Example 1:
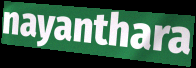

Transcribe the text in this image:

nayanthara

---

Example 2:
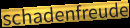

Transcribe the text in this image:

schadenfreude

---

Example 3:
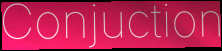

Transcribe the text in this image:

Conjuction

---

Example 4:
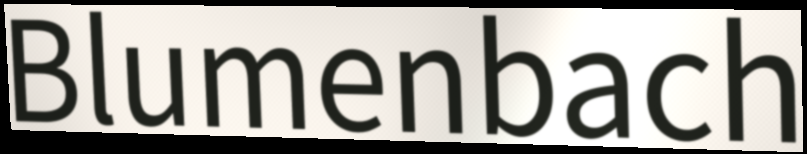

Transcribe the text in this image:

Blumenbach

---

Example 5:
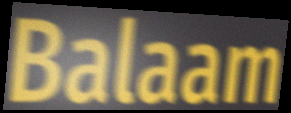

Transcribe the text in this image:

Balaam